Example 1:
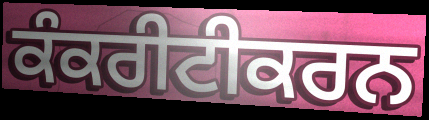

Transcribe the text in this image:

ਕੰਕਰੀਟੀਕਰਨ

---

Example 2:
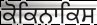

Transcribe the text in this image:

ਕੋਕਿਨਾਕਿਸ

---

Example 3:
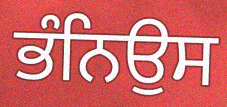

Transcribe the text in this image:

ਭੰਨਿਉਸ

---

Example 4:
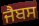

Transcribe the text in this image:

ਜੈਬਸ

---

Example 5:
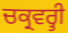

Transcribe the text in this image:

ਚਕ੍ਰਵਰ੍ਤੀ